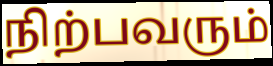
நிற்பவரும்